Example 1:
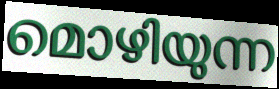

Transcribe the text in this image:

മൊഴിയുന്ന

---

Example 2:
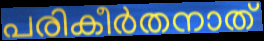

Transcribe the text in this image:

പരികീർതനാത്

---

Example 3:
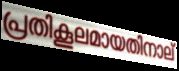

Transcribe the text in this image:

പ്രതികൂലമായതിനാല്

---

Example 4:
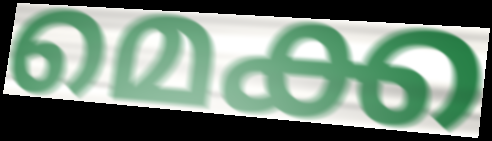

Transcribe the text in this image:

മെക്ക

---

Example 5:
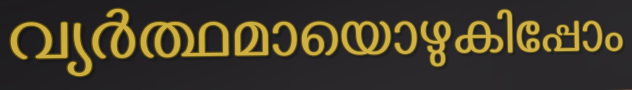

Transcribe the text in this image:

വ്യർത്ഥമായൊഴുകിപ്പോം